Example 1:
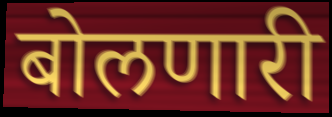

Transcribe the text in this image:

बोलणारी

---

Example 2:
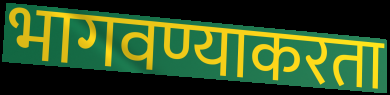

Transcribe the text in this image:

भागवण्याकरता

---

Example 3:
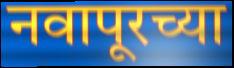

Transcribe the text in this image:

नवापूरच्या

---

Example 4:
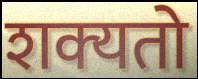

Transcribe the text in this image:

शक्‍यतो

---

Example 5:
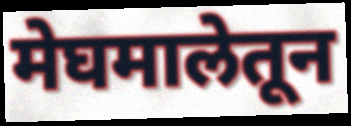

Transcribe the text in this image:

मेघमालेतून